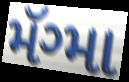
મૅગ્મા